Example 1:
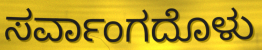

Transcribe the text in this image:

ಸರ್ವಾಂಗದೊಳು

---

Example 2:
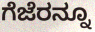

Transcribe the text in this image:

ಗೆಜೆರನ್ನೂ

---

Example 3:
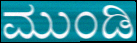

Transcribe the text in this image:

ಮುಂಡಿ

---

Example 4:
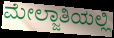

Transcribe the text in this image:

ಮೇಲ್ಜಾತಿಯಲ್ಲಿ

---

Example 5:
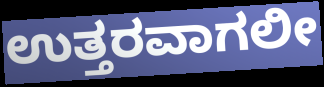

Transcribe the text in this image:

ಉತ್ತರವಾಗಲೀ